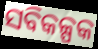
ସବିକଳ୍ପକ